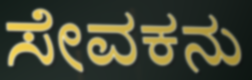
ಸೇವಕನು